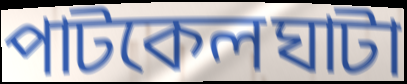
পাটকেলঘাটা